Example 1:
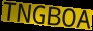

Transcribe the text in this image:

TNGBOA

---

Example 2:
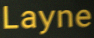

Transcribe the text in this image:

Layne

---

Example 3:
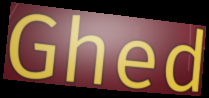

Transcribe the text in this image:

Ghed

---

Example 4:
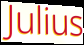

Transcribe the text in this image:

Julius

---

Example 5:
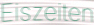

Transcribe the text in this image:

Eiszeiten